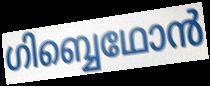
ഗിബ്ബെഥോൻ